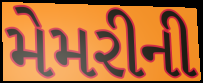
મેમરીની